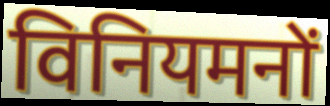
विनियमनों